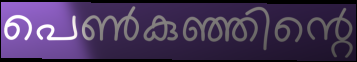
പെൺകുഞ്ഞിന്റെ